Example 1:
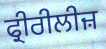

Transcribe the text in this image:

ਫ੍ਰੀਰੀਲੀਜ਼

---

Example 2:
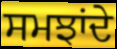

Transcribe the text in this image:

ਸਮਝਾਂਦੇ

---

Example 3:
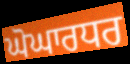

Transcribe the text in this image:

ਘੋਘਾਰਧਰ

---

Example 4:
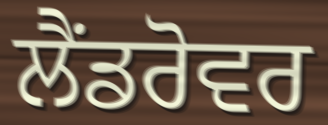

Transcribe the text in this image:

ਲੈਂਡਰੋਵਰ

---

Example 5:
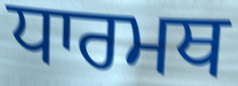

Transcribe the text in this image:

ਧਾਰਮਥ